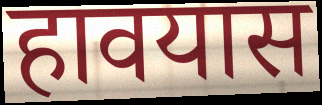
हावयास